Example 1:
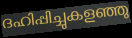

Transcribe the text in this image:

ദഹിപ്പിച്ചുകളഞ്ഞു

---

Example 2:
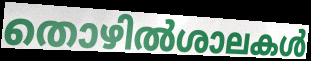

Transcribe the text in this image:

തൊഴിൽശാലകൾ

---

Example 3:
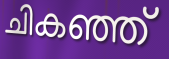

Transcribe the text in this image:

ചികഞ്ഞ്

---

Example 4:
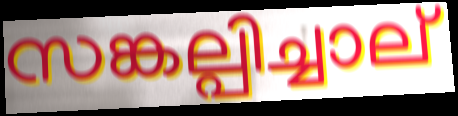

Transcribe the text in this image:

സങ്കല്പിച്ചാല്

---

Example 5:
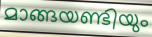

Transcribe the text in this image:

മാങ്ങയണ്ടിയും